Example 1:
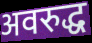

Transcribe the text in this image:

अवरुद्ध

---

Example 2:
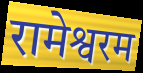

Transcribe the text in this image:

रामेश्वरम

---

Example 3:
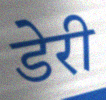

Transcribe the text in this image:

डेरी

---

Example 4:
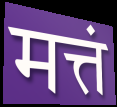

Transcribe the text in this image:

मत्तं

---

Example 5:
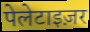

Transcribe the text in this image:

पेलेटाइज़र